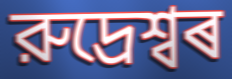
ৰুদ্ৰেশ্বৰ